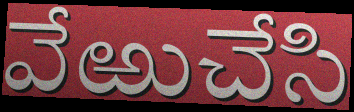
వేఱుచేసి